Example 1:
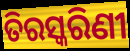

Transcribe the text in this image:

ତିରସ୍କରିଣୀ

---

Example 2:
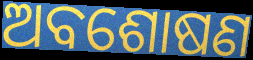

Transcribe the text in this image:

ଅବଶୋଷଣ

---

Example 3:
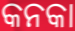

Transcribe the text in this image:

କନକା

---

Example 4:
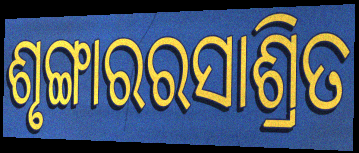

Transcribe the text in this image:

ଶୃଙ୍ଗାରରସାଶ୍ରିତ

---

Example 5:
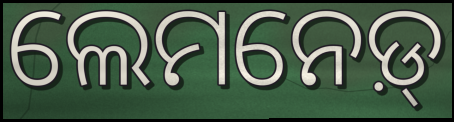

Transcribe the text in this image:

ଲେମନେଡ଼୍